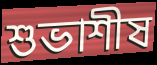
শুভাশীষ